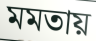
মমতায়